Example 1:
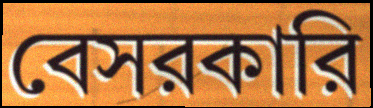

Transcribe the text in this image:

বেসরকারি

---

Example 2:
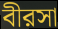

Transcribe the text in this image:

বীরসা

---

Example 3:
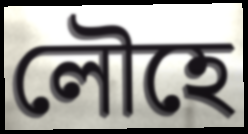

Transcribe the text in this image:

লৌহে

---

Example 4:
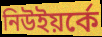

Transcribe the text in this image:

নিউইয়র্কে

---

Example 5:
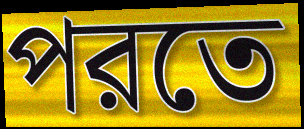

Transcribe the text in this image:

পরতে